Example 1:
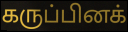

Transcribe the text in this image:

கருப்பினக்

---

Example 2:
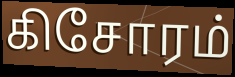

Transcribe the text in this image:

கிசோரம்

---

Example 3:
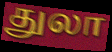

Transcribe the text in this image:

துலா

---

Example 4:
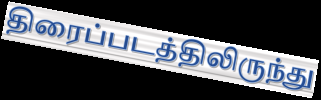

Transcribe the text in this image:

திரைப்படத்திலிருந்து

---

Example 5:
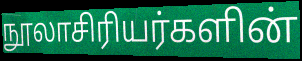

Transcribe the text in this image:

நூலாசிரியர்களின்